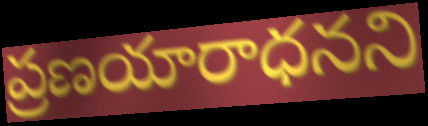
ప్రణయారాధనని